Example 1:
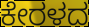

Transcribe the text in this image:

ಕೇರಳದ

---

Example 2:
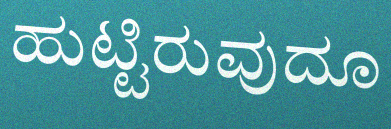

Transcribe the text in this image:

ಹುಟ್ಟಿರುವುದೂ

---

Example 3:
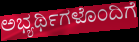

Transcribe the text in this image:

ಅಭ್ಯರ್ಥಿಗಳೊಂದಿಗೆ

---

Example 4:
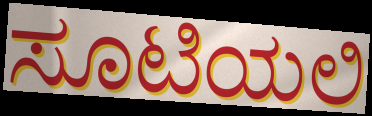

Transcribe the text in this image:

ಸೂಟಿಯಲಿ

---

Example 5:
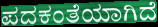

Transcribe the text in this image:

ಪದಕಂತೆಯಾಗಿದೆ